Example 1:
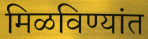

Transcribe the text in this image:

मिळविण्यांत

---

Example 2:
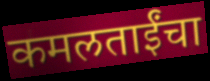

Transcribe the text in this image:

कमलताईंचा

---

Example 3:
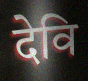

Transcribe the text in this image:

देवि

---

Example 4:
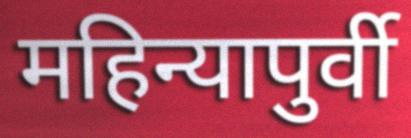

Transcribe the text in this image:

महिन्यापुर्वी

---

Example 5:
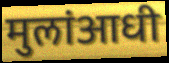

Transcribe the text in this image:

मुलांआधी